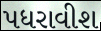
પધરાવીશ